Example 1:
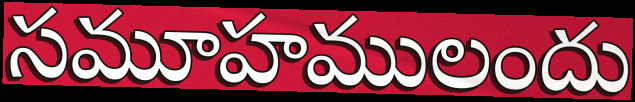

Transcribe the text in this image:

సమూహములందు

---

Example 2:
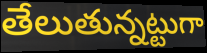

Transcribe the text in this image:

తేలుతున్నట్టుగా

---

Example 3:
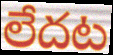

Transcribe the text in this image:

లేదట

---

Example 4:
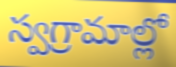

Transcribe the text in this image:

స్వగ్రామాల్లో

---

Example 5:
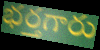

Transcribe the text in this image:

భర్తగారు